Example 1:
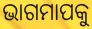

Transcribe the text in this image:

ଭାଗମାପକୁ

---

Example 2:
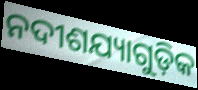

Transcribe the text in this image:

ନଦୀଶଯ୍ୟାଗୁଡ଼ିକ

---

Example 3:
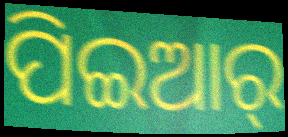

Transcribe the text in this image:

ପିଇଆର୍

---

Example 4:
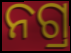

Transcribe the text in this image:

ନଗ୍ର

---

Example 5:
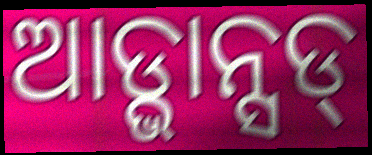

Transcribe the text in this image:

ଆଡ୍ଭାନ୍ସଡ୍